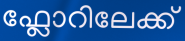
ഫ്ലോറിലേക്ക്